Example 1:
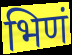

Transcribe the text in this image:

भिणं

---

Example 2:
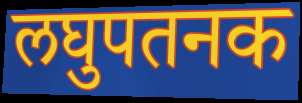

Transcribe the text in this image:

लघुपतनक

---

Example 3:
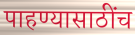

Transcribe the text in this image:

पाहण्यासाठींच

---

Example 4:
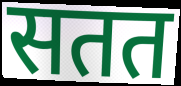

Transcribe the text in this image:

सतत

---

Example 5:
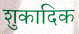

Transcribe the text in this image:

शुकादिक